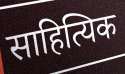
साहित्यिक